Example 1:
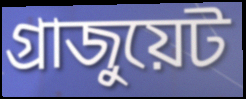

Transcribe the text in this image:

গ্রাজুয়েট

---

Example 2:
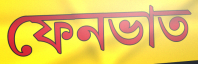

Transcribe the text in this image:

ফেনভাত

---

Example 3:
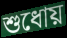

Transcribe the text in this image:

শুধোয়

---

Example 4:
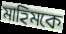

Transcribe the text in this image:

মাহিমকে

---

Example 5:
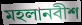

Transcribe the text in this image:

মহলানবীশ